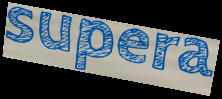
supera